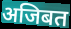
अजिबत